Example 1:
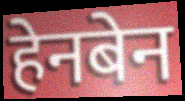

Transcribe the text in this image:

हेनबेन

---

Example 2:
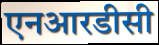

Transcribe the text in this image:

एनआरडीसी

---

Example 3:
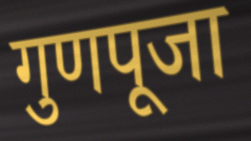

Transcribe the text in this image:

गुणपूजा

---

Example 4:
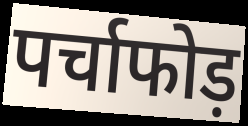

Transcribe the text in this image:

पर्चाफोड़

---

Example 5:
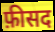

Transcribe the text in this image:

फ़ीसद